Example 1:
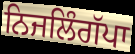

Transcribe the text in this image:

ਨਿਜਲਿੰਗੱਪਾ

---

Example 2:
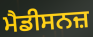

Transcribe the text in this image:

ਮੈਡੀਸਨਜ਼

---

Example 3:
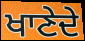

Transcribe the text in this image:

ਖਾਣੇਦੇ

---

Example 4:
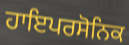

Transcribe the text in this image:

ਹਾਇਪਰਸੋਨਿਕ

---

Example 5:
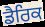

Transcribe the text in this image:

ਡੈਰਿਕ